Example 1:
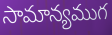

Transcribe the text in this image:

సామాన్యముగ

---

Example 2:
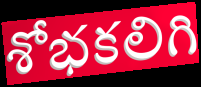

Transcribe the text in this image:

శోభకలిగి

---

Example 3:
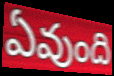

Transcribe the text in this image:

ఏవుంది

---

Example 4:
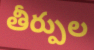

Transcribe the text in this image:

తీర్పుల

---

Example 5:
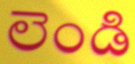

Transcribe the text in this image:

లెండి